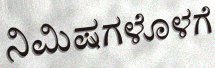
ನಿಮಿಷಗಳೊಳಗೆ